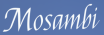
Mosambi